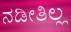
ನಡೀತಿಲ್ಲ